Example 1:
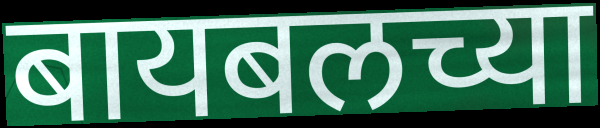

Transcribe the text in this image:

बायबलच्या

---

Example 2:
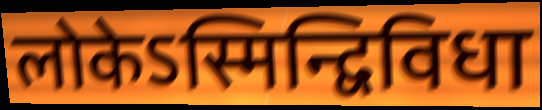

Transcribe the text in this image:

लोकेऽस्मिन्द्विविधा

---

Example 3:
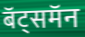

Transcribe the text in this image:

बॅट्समॅन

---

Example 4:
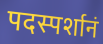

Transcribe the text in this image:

पदस्पर्शानं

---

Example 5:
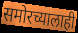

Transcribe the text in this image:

समोरच्यालाही